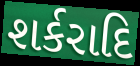
શર્કરાદિ